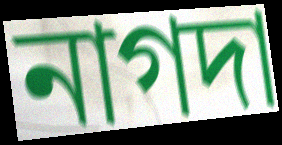
নাগদা